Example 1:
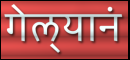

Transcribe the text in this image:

गेल्यानं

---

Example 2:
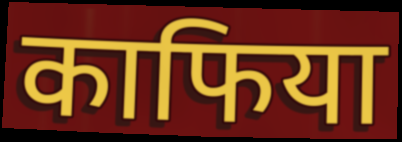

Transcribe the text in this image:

काफिया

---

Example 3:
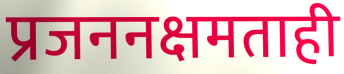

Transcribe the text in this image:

प्रजननक्षमताही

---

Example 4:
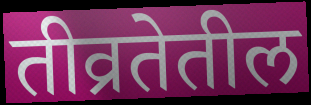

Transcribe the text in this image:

तीव्रतेतील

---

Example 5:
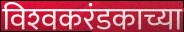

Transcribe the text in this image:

विश्‍वकरंडकाच्या